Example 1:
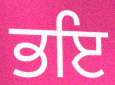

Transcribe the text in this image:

ਭਇ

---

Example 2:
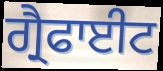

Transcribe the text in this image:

ਗ੍ਰੈਫਾਈਟ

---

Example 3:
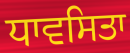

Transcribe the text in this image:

ਧਾਵਸਿਤਾ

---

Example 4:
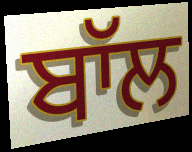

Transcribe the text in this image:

ਬਾੱਲ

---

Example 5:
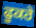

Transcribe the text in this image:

ਫੂਕਰੇ